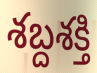
శబ్దశక్తి